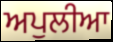
ਅਪੁਲੀਆ